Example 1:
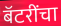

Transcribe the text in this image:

बॅटरींचा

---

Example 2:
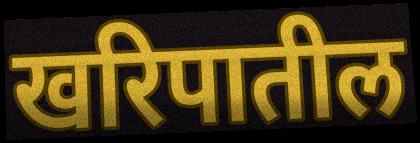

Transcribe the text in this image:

खरिपातील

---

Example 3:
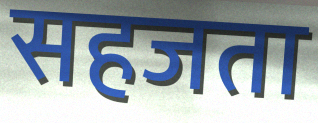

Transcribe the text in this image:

सहजता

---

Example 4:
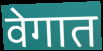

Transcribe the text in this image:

वेगात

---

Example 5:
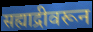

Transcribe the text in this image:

सह्याद्रीवरून